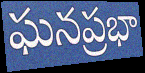
ఘనప్రభా